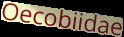
Oecobiidae